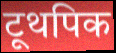
टूथपिक